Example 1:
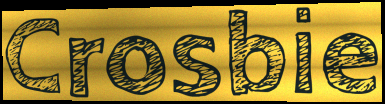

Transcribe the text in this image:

Crosbie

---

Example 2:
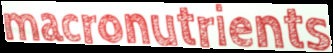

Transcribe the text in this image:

macronutrients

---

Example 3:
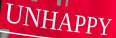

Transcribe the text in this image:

UNHAPPY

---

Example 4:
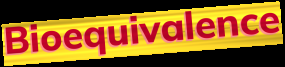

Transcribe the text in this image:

Bioequivalence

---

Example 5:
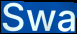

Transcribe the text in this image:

Swa